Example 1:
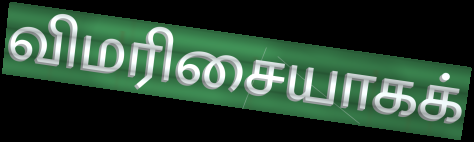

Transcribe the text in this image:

விமரிசையாகக்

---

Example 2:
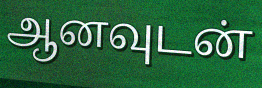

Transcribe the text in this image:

ஆனவுடன்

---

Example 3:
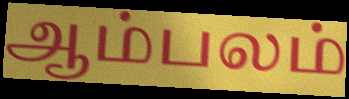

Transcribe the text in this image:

ஆம்பலம்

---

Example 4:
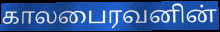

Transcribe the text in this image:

காலபைரவனின்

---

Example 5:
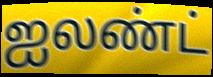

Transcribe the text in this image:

ஐலண்ட்